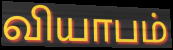
வியாபம்